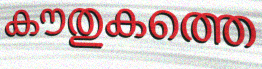
കൗതുകത്തെ